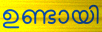
ഉണ്ടായി